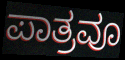
ಪಾತ್ರವೂ